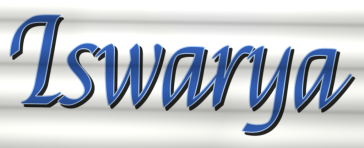
Iswarya